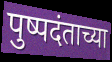
पुष्पदंताच्या